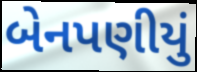
બેનપણીયું